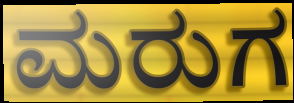
ಮರುಗ